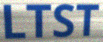
LTST